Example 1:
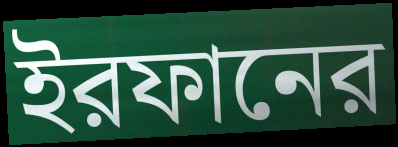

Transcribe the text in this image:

ইরফানের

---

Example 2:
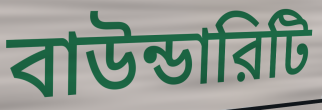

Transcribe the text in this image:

বাউন্ডারিটি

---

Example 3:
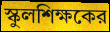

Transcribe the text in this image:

স্কুলশিক্ষকের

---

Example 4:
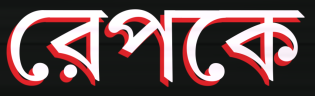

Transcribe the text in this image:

রেপকে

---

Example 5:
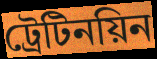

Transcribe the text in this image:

ট্রেটিনয়িন